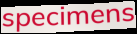
specimens